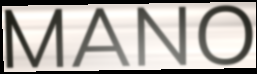
MANO